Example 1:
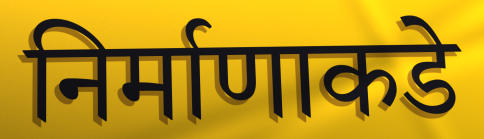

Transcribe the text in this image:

निर्माणाकडे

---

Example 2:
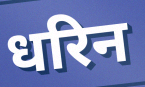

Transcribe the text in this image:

धरिन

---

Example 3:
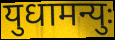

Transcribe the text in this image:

युधामन्युः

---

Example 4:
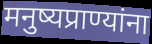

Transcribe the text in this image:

मनुष्यप्राण्यांना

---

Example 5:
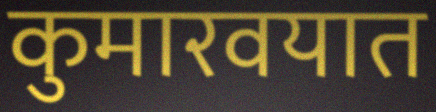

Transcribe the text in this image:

कुमारवयात